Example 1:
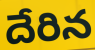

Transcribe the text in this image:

దేరిన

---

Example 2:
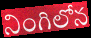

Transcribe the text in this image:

నింగిలోన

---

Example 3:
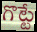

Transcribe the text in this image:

గొట్టే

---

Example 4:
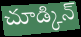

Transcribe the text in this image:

చూడ్కిన్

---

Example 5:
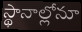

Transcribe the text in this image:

స్థానాల్లోనూ